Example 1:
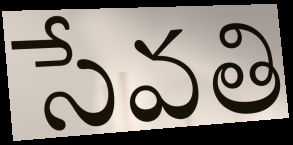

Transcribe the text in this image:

సేవతి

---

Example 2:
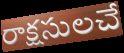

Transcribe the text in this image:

రాక్షసులచే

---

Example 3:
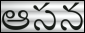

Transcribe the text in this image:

ఆసన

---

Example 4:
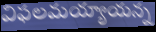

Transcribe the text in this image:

విఫలమయ్యాయన్న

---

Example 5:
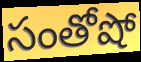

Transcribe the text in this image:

సంతోషో